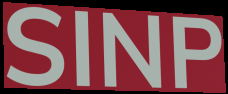
SINP